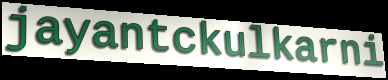
jayantckulkarni